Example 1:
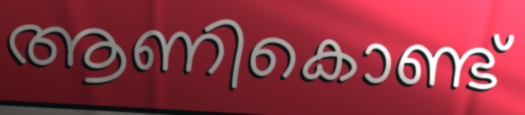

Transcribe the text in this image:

ആണികൊണ്ട്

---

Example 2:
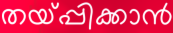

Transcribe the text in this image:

തയ്പ്പിക്കാൻ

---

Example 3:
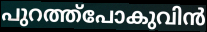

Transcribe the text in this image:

പുറത്ത്പോകുവിൻ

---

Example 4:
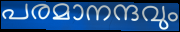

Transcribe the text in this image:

പരമാനന്ദവും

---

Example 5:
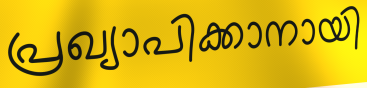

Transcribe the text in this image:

പ്രഖ്യാപിക്കാനായി